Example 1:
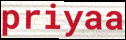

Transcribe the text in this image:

priyaa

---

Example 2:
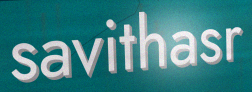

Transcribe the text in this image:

savithasr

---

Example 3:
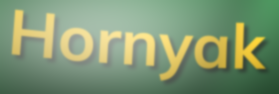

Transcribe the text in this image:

Hornyak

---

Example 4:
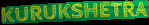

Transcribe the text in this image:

KURUKSHETRA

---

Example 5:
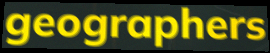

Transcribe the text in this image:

geographers